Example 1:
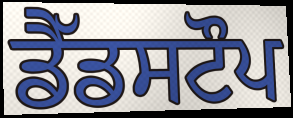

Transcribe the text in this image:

ਡੈੱਡਸਟੌਪ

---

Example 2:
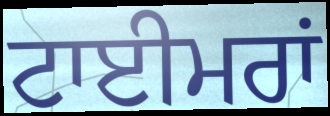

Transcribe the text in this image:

ਟਾਈਮਰਾਂ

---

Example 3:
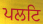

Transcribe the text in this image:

ਪਲਟਿ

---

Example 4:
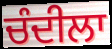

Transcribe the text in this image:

ਚੰਦੀਲਾ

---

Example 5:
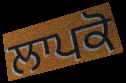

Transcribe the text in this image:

ਲਾਪਕੋ